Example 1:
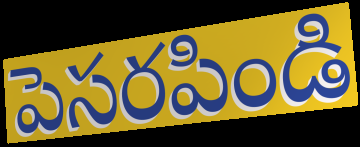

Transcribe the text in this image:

పెసరపిండి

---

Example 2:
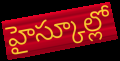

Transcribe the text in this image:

హైస్కూల్లో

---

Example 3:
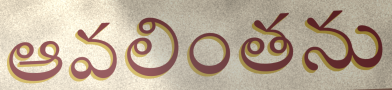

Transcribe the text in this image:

ఆవలింతను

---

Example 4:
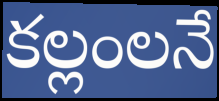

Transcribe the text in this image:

కల్లంలనే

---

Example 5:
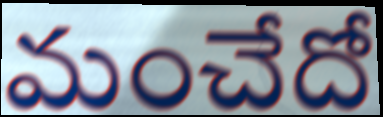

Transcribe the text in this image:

మంచేదో